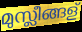
മുസ്ലീങ്ങള്